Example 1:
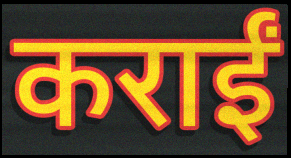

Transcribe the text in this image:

कराईं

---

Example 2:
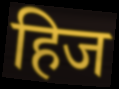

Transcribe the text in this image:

हिज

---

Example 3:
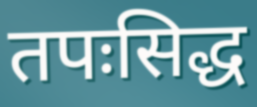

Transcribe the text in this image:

तपःसिद्ध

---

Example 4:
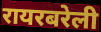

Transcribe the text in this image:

रायरबरेली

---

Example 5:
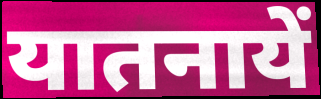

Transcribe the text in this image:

यातनायें